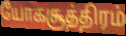
யோகசூத்திரம்